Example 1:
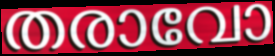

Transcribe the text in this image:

തരാവോ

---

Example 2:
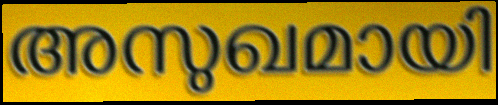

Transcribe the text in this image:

അസുഖമായി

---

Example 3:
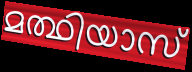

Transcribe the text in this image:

മത്ഥിയാസ്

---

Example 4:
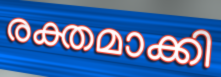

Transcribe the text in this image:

രക്തമാക്കി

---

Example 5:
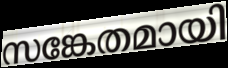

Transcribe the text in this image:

സങ്കേതമായി